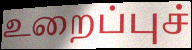
உறைப்புச்